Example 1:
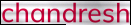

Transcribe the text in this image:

chandresh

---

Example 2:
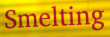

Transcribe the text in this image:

Smelting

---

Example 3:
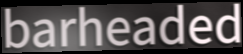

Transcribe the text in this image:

barheaded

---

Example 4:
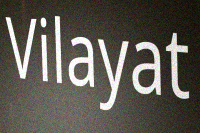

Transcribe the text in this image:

Vilayat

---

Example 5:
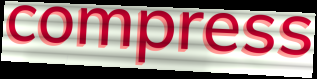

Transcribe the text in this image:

compress